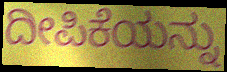
ದೀಪಿಕೆಯನ್ನು